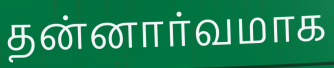
தன்னார்வமாக